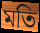
মতি